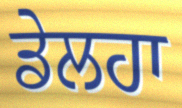
ਡੇਲਹਾ